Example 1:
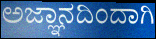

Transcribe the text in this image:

ಅಜ್ಞಾನದಿಂದಾಗಿ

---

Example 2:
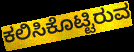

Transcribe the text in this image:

ಕಲಿಸಿಕೊಟ್ಟಿರುವ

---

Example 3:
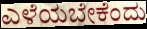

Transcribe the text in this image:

ಎಳೆಯಬೇಕೆಂದು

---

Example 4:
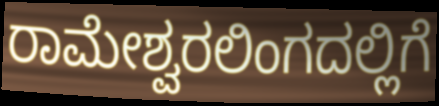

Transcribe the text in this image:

ರಾಮೇಶ್ವರಲಿಂಗದಲ್ಲಿಗೆ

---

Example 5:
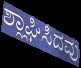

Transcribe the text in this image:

ಶ್ಲಾಘಿಸಿದವು